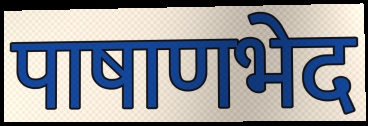
पाषाणभेद